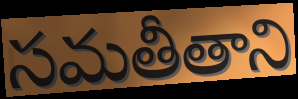
సమతీతాని